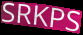
SRKPS